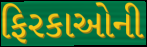
ફિરકાઓની